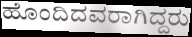
ಹೊಂದಿದವರಾಗಿದ್ದರು